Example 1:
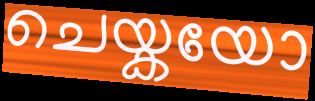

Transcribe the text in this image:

ചെയ്കയോ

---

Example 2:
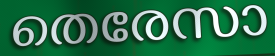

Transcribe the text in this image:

തെരേസാ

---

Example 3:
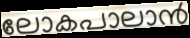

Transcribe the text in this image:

ലോകപാലാൻ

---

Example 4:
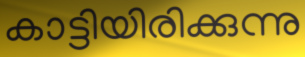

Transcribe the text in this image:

കാട്ടിയിരിക്കുന്നു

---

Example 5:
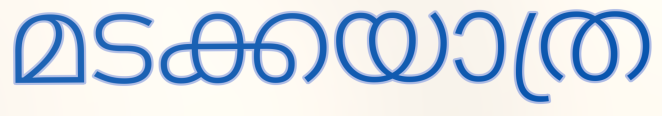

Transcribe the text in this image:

മടക്കയാത്ര